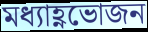
মধ্যাহ্ণভোজন